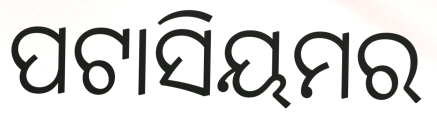
ପଟାସିୟମର